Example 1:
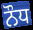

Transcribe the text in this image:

ਨੌਧ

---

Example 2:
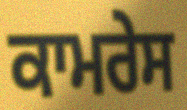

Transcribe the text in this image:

ਕਾਮਰੇਸ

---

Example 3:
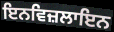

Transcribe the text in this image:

ਇਨਵਿਜ਼ਲਾਇਨ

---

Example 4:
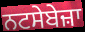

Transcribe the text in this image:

ਨਟਸੇਬੇਜ਼ਾ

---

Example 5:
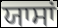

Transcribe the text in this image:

ਯਾਸਾਂ